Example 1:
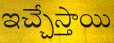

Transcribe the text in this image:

ఇచ్చేస్తాయి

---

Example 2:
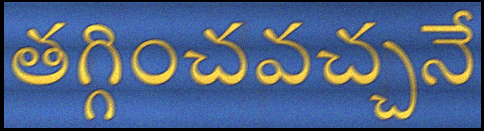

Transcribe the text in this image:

తగ్గించవచ్చనే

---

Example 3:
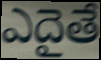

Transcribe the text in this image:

ఎదైతే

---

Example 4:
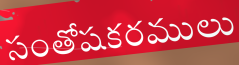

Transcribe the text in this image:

సంతోషకరములు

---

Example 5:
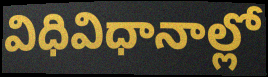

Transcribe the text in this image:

విధివిధానాల్లో